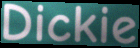
Dickie